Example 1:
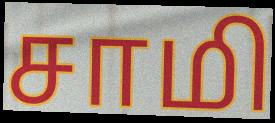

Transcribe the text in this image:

சாமி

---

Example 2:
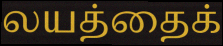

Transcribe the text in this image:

லயத்தைக்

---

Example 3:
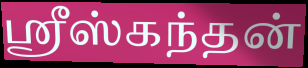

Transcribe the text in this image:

ஸ்ரீஸ்கந்தன்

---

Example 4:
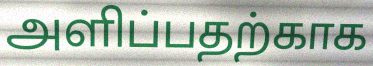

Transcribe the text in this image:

அளிப்பதற்காக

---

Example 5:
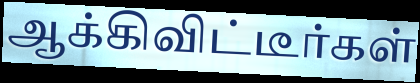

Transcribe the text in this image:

ஆக்கிவிட்டீர்கள்